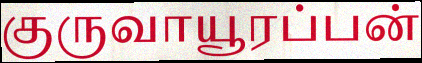
குருவாயூரப்பன்